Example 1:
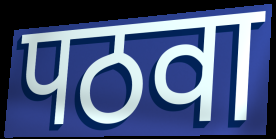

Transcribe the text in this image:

पठवा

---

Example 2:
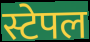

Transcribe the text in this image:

स्टेपल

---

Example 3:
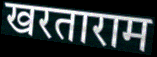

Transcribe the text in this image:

खरताराम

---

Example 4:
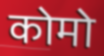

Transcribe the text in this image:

कोमो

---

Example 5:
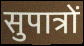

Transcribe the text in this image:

सुपात्रों